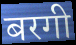
बरगी